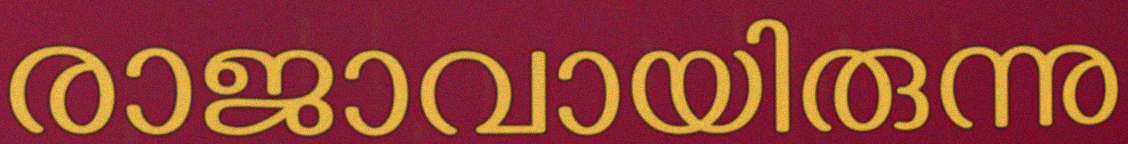
രാജാവായിരുന്നു